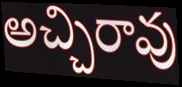
అచ్చిరావు